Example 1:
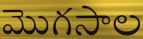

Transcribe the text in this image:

మొగసాల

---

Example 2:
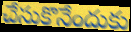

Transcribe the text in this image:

చేసుకొనేందుకు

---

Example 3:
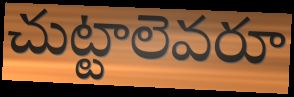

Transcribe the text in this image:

చుట్టాలెవరూ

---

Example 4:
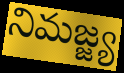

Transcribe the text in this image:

నిమజ్జ్య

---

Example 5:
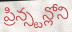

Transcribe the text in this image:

ప్రిన్స్టన్లోని